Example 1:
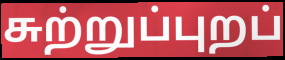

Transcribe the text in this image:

சுற்றுப்புறப்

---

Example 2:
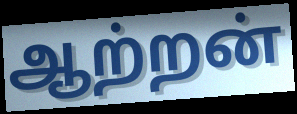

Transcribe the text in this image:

ஆற்றன்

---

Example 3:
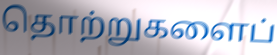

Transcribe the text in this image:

தொற்றுகளைப்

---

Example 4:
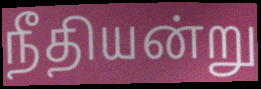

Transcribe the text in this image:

நீதியன்று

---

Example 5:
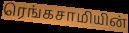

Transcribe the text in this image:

ரெங்கசாமியின்